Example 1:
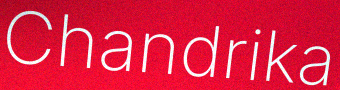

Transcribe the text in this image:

Chandrika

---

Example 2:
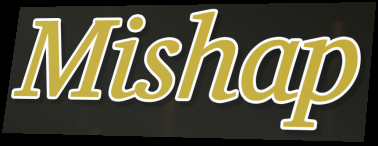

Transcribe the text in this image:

Mishap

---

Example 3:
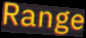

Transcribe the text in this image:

Range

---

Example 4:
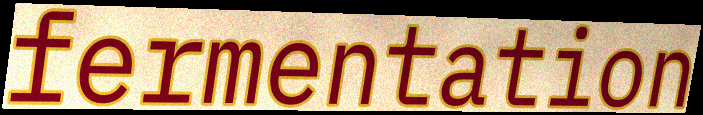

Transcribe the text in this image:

fermentation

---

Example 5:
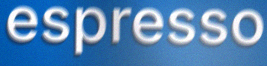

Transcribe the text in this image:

espresso